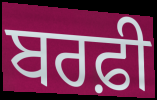
ਬਰਫ਼ੀ